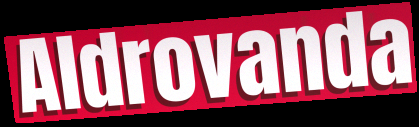
Aldrovanda